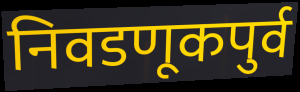
निवडणूकपुर्व